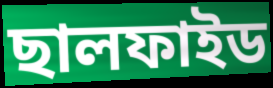
ছালফাইড